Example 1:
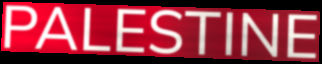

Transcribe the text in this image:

PALESTINE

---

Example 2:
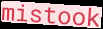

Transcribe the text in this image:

mistook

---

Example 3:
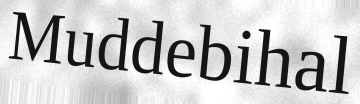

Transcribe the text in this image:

Muddebihal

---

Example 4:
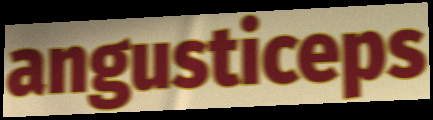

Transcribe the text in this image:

angusticeps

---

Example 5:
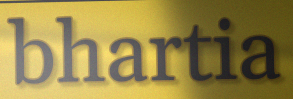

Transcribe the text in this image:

bhartia